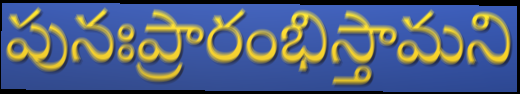
పునఃప్రారంభిస్తామని